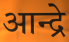
आन्द्रे